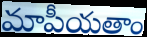
మాపీయతాం